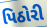
પિઠોરી